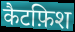
कैटफ़िश